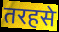
तरहसे